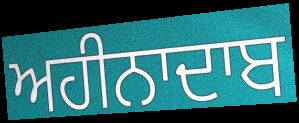
ਅਹੀਨਾਦਾਬ